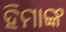
ହିମାଙ୍କ